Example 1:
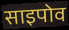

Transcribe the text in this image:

साइपोव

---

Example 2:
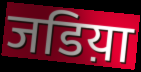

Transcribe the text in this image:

जडिय़ा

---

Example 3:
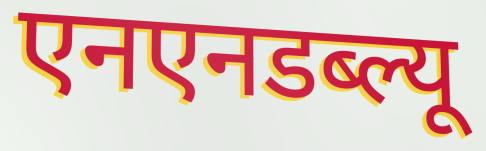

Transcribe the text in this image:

एनएनडब्ल्यू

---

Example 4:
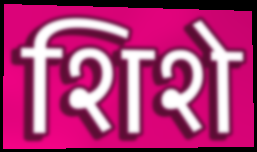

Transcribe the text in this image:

शिशे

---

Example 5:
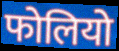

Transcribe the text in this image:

फोलियो